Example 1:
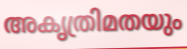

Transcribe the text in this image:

അകൃത്രിമതയും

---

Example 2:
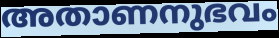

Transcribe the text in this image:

അതാണനുഭവം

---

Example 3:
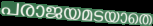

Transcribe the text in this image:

പരാജയമടയാതെ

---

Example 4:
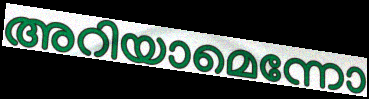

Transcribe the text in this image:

അറിയാമെന്നോ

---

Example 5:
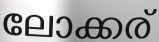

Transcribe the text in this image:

ലോക്കര്